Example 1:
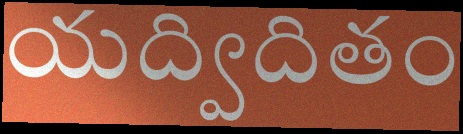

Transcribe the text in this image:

యద్విదితం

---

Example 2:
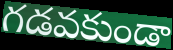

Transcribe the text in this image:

గడవకుండా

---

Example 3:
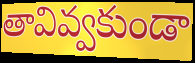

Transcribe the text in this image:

తావివ్వకుండా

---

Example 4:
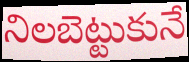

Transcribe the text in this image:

నిలబెట్టుకునే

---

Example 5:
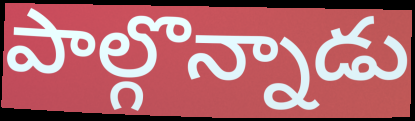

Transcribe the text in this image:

పాల్గొన్నాడు